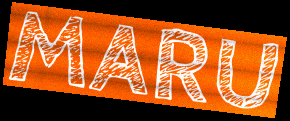
MARU